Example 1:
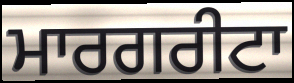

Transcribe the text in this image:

ਮਾਰਗਰੀਟਾ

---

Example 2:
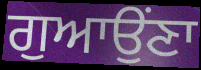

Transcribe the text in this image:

ਗੁਆਉਂਣਾ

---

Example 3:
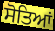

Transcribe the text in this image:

ਸੋਤਿਆਂ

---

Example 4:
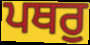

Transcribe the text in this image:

ਪਥਰੁ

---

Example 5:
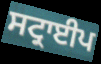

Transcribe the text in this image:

ਸਟ੍ਰਾਈਪ